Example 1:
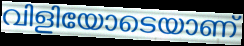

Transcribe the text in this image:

വിളിയോടെയാണ്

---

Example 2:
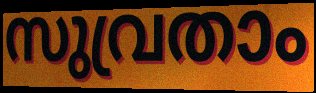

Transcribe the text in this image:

സുവ്രതാം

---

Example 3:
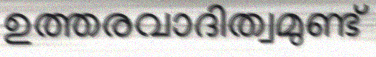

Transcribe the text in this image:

ഉത്തരവാദിത്വമുണ്ട്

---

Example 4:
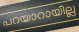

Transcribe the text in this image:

പറയാറായില്ല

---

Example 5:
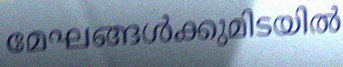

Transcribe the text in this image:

മേഘങ്ങൾക്കുമിടയിൽ